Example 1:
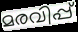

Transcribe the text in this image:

മരവിപ്പ്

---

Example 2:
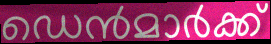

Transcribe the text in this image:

ഡെൻമാർക്ക്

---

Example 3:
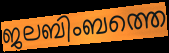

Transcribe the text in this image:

ജലബിംബത്തെ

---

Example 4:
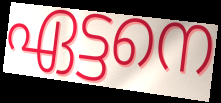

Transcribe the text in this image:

ഏട്ടനെ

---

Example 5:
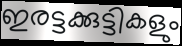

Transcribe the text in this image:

ഇരട്ടക്കുട്ടികളും